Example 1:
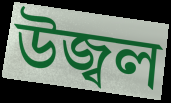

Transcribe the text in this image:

উজ্বল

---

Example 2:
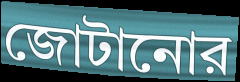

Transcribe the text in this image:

জোটানোর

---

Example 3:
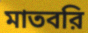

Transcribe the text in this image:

মাতবরি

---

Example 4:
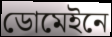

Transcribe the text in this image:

ডোমেইনে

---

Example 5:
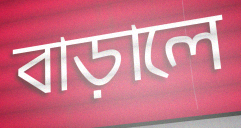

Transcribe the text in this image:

বাড়ালে